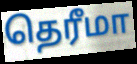
தெரீமா